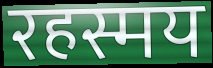
रहस्मय